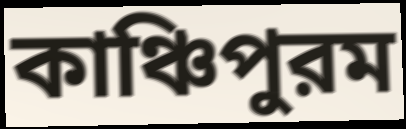
কাঞ্চিপুরম